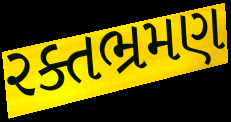
રક્તભ્રમણ